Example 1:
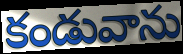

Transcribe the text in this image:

కండువాను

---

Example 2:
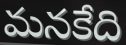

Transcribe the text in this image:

మనకేది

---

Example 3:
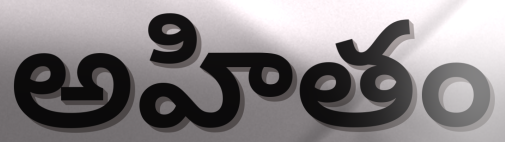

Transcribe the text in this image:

అహితం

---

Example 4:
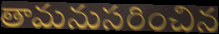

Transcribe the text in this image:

తామనుసరించిన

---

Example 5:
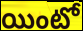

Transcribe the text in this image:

యింటో